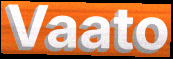
Vaato